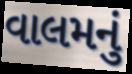
વાલમનું